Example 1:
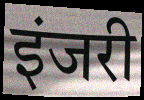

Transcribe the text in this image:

इंजरी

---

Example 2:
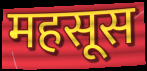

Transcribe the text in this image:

महसूस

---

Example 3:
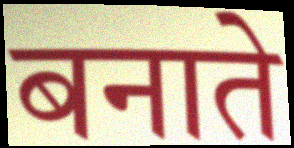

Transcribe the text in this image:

बनाते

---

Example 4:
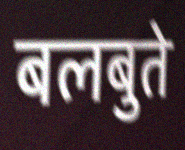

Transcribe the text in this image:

बलबुते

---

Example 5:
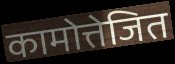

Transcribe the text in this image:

कामोत्तेजित